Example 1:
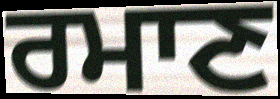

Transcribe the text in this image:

ਰਮਾਣ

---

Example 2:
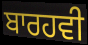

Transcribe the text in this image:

ਬਾਰਹਵੀ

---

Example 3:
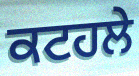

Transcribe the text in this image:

ਕਟਹਲੇ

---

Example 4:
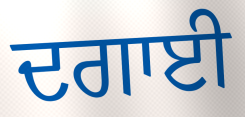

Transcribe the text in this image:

ਦਗਾਈ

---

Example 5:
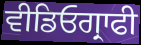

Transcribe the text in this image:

ਵੀਡਿਓਗ੍ਰਾਫੀ